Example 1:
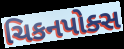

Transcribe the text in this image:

ચિકનપોક્સ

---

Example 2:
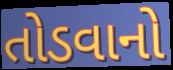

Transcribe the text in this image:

તોડવાનો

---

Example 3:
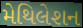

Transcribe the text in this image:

મેથિલેશન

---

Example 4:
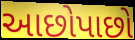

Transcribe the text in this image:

આછોપાછો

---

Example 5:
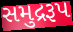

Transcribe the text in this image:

સમુદ્રરૂપ